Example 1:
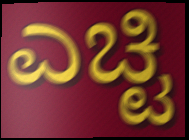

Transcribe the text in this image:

ಎಚ್ಟಿ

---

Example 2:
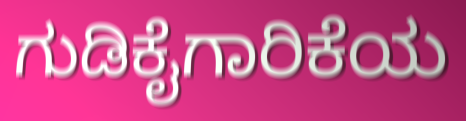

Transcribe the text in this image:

ಗುಡಿಕೈಗಾರಿಕೆಯ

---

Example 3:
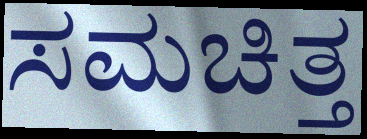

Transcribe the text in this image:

ಸಮಚಿತ್ತ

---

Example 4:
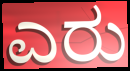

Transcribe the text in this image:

ಎರು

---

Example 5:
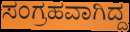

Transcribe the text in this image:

ಸಂಗ್ರಹವಾಗಿದ್ದ